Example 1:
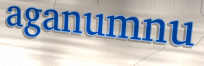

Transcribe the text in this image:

aganumnu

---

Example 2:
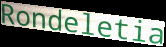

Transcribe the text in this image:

Rondeletia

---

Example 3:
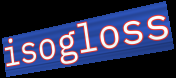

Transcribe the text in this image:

isogloss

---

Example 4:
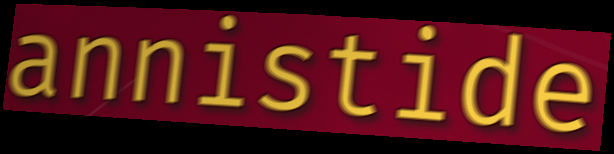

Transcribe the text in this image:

annistide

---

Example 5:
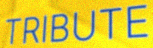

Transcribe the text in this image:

TRIBUTE